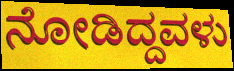
ನೋಡಿದ್ದವಳು